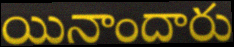
యినాందారు